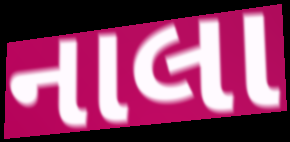
નાલા